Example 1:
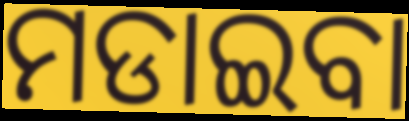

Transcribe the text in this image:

ମଡାଇବା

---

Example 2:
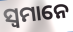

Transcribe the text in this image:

ସ୍ୱମାନେ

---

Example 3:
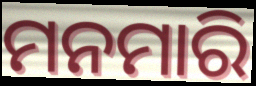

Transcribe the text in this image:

ମନମାରି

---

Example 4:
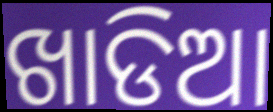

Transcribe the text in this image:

ଖାଡିଆ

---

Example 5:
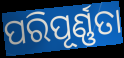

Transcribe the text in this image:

ପରିପୂର୍ଣ୍ଣତା